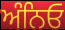
ਅੰਨਿਓ